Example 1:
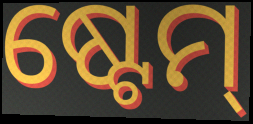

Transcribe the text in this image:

ଷ୍ଟେମ୍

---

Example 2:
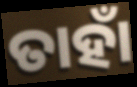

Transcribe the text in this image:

ତାହାଁ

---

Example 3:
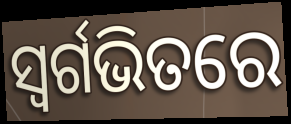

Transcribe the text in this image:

ସ୍ଵର୍ଗଭିତରେ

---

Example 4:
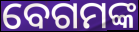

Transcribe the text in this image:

ବେଗମଙ୍କ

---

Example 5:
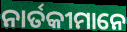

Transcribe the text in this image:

ନାର୍ତକୀମାନେ